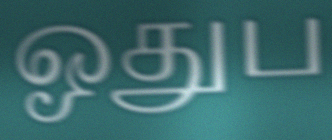
ஓதுப